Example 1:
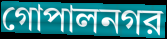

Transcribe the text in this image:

গোপালনগর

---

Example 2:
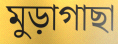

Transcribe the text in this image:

মুড়াগাছা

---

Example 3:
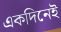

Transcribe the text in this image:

একদিনেই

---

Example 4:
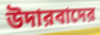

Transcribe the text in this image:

উদারবাদের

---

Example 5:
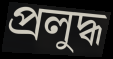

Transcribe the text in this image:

প্রলুদ্ধ